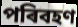
পৰিবহণ